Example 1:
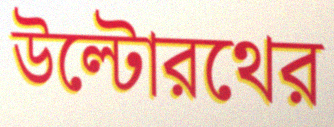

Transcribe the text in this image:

উল্টোরথের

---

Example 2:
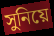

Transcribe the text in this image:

সুনিয়ে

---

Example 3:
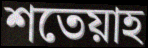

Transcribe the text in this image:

শতেয়াহ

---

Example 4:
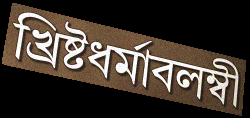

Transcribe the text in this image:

খ্রিষ্টধর্মাবলম্বী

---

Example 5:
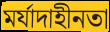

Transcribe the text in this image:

মর্যাদাহীনতা